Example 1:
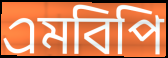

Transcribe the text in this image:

এমবিপি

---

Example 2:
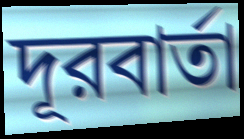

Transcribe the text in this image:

দূরবার্তা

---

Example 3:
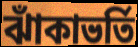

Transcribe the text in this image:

ঝাঁকাভর্তি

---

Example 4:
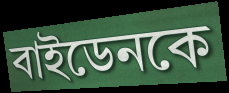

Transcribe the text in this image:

বাইডেনকে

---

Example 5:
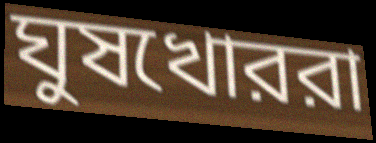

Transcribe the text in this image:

ঘুষখোররা